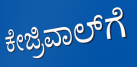
ಕೇಜ್ರಿವಾಲ್‍ಗೆ